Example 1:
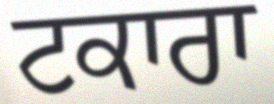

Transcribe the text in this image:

ਟਕਾਰਾ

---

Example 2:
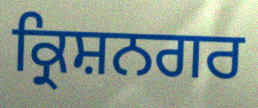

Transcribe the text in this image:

ਕ੍ਰਿਸ਼ਨਗਰ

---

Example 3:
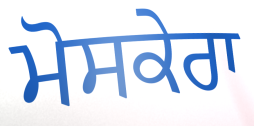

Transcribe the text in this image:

ਮੋਸਕੇਰਾ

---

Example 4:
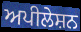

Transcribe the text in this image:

ਅਪੀਲੇਸ਼ਨ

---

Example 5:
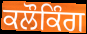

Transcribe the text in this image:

ਕਲੌਕਿੰਗ